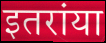
इतरांया